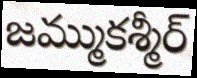
జమ్ముకశ్మీర్